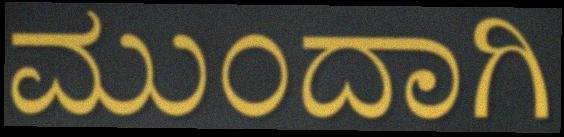
ಮುಂದಾಗಿ